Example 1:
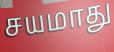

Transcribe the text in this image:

சயமாது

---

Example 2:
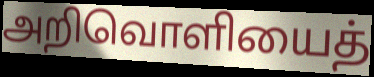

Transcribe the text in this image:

அறிவொளியைத்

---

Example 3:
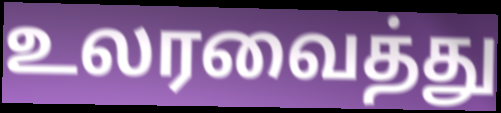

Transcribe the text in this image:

உலரவைத்து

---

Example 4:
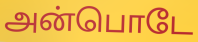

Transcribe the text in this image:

அன்பொடே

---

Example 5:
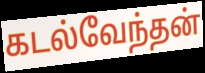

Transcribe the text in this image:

கடல்வேந்தன்